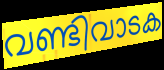
വണ്ടിവാടക